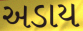
અડાય